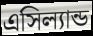
এসিল্যান্ড